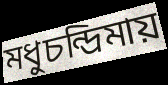
মধুচন্দ্রিমায়